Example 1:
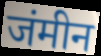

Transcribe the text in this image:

जंमीन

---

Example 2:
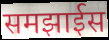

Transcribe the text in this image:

समझाईस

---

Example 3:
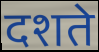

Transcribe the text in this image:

दशते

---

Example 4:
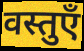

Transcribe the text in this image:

वस्तुएँ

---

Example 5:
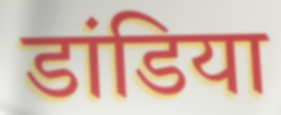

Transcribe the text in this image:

डांडिया